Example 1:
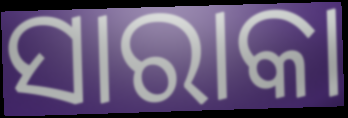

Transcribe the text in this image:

ସାରାକା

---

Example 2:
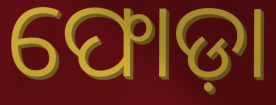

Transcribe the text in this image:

ଫୋଡ଼ା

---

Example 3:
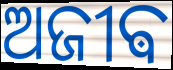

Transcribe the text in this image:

ଅଜୀଵ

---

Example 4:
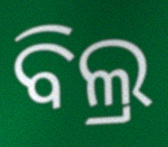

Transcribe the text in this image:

ବିଲ୍ର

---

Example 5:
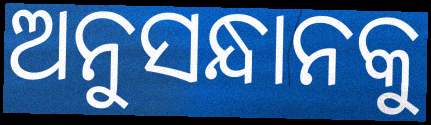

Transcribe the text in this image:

ଅନୁସନ୍ଧାନକୁ